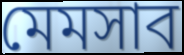
মেমসাব